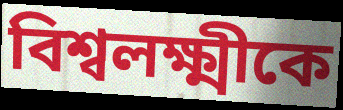
বিশ্বলক্ষ্মীকে